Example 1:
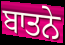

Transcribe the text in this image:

ਬਾਤਨੇ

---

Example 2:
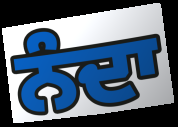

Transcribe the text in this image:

ਨੰਦਾ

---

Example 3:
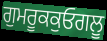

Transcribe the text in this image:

ਗੁਮਰੂਕਕੁਓਗਲੂ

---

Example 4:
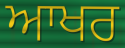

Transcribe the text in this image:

ਆਖਰ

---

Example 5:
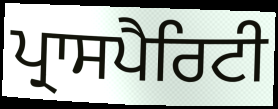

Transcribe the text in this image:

ਪ੍ਰਾਸਪੈਰਿਟੀ